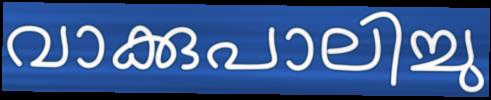
വാക്കുപാലിച്ചു